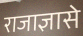
राजाज्ञासे